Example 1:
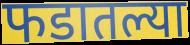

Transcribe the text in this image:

फडातल्या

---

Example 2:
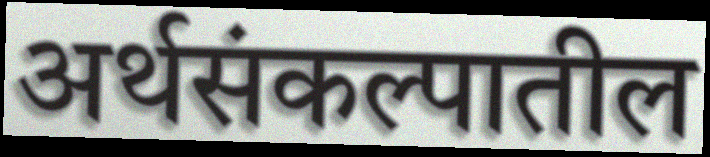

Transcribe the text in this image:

अर्थसंकल्पातील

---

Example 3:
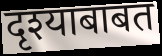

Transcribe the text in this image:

दृश्याबाबत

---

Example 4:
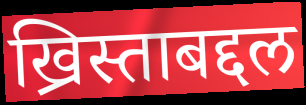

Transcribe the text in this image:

ख्रिस्ताबद्दल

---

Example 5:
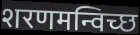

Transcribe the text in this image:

शरणमन्विच्छ